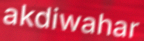
akdiwahar